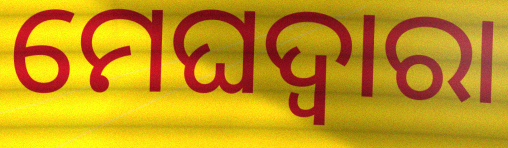
ମେଘଦ୍ୱାରା